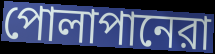
পোলাপানেরা